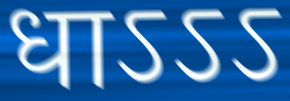
धाऽऽऽ